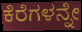
ಕೆರೆಗಳನ್ನೇ